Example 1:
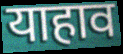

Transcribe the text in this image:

याहाव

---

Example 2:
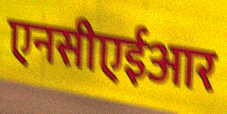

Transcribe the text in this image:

एनसीएईआर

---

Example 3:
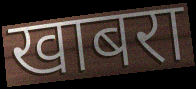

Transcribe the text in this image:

खाबरा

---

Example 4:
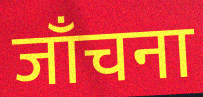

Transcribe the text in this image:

जाँचना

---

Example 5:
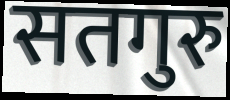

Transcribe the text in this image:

सतगुरु